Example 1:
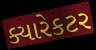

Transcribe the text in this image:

ક્યારેકટર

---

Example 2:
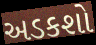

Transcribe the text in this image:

અડકશો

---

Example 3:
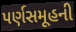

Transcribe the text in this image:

પર્ણસમૂહની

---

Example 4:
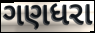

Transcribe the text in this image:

ગણધરા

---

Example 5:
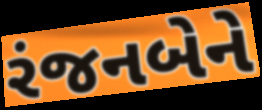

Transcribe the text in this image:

રંજનબેને